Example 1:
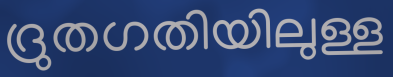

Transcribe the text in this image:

ദ്രുതഗതിയിലുള്ള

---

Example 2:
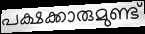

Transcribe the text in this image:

പക്ഷക്കാരുമുണ്ട്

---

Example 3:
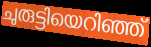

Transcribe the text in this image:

ചുരുട്ടിയെറിഞ്ഞ്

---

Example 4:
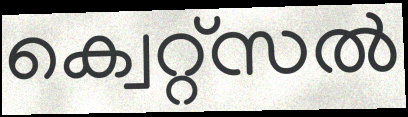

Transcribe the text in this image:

ക്വെറ്റ്സൽ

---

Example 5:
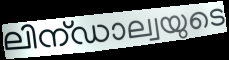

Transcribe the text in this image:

ലിന്ഡാല്വയുടെ